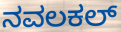
ನವಲಕಲ್